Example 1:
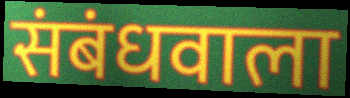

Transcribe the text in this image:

संबंधवाला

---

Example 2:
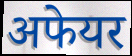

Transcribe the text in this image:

अफेयर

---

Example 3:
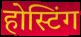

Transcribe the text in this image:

होस्टिंग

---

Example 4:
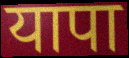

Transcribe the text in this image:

यापा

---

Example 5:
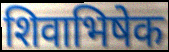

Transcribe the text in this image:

शिवाभिषेक